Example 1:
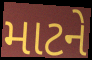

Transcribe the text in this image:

માટને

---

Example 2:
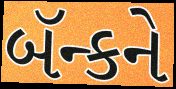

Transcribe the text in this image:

બૅન્કને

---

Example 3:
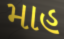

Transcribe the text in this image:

માહ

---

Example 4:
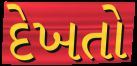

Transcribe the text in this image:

દેખતો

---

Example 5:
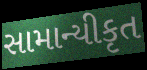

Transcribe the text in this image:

સામાન્યીકૃત